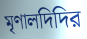
মৃণালদিদির